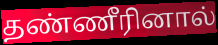
தண்ணீரினால்